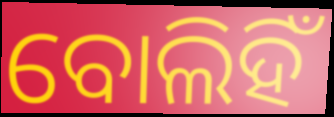
ବୋଲିହିଁ